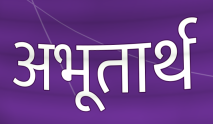
अभूतार्थ